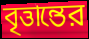
বৃত্তান্তের